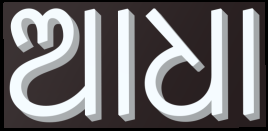
ଆଧା